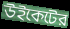
উইকেটের